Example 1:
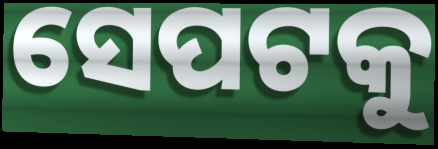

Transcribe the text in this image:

ସେପଟକୁ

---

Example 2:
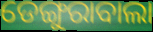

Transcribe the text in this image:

ଡେଙ୍ଗୁରାବାଲା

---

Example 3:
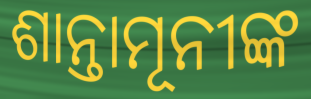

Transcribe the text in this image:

ଶାନ୍ତାମୂନୀଙ୍କ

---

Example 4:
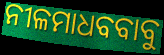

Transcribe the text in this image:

ନୀଳମାଧବବାବୁ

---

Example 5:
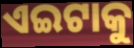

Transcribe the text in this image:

ଏଇଟାକୁ